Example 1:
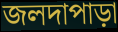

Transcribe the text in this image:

জলদাপাড়া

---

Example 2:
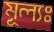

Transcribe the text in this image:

মূল্যঃ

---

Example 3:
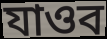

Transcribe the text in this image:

যাওব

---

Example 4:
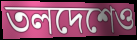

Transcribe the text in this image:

তলদেশেও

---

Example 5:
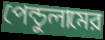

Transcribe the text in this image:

পেন্ডুলামের